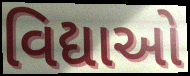
વિદ્યાઓ